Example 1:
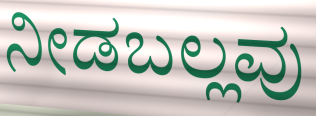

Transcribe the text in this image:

ನೀಡಬಲ್ಲವು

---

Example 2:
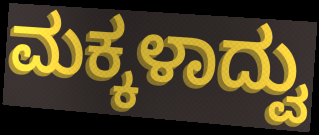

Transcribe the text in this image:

ಮಕ್ಕಳಾದ್ವು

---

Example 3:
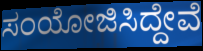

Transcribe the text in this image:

ಸಂಯೋಜಿಸಿದ್ದೇವೆ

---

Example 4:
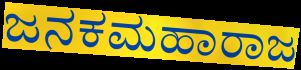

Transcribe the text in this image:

ಜನಕಮಹಾರಾಜ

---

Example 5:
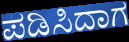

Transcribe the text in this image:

ಪಡಿಸಿದಾಗ